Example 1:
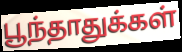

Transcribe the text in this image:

பூந்தாதுக்கள்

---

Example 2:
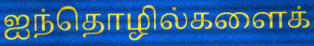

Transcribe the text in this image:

ஐந்தொழில்களைக்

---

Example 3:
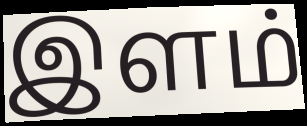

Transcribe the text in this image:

இளம்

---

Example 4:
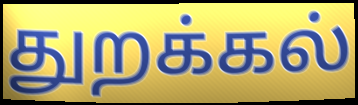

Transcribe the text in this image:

துறக்கல்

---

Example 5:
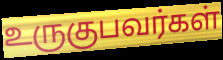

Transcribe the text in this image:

உருகுபவர்கள்